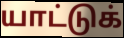
யாட்டுக்